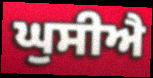
ਘੁਸੀਐ